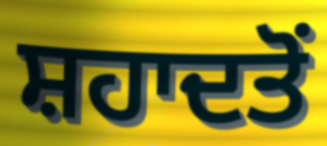
ਸ਼ਹਾਦਤੋਂ